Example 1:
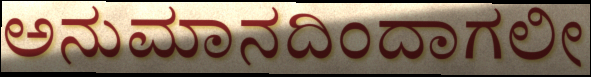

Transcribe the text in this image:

ಅನುಮಾನದಿಂದಾಗಲೀ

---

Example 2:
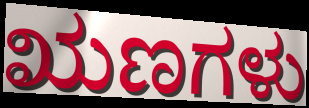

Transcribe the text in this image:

ಋಣಗಳು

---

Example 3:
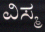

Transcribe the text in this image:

ವಿಸ್ಮ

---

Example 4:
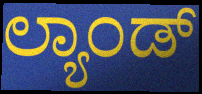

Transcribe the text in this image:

ಲ್ಯಾಂಡ್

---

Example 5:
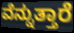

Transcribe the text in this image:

ವೆನ್ನುತ್ತಾರೆ